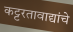
कट्टरतावाद्यांचे